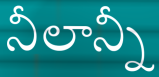
నీలాన్నీ